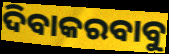
ଦିବାକରବାବୁ